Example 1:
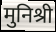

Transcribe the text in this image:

मुनिश्री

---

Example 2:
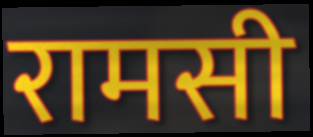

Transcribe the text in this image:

रामसी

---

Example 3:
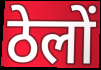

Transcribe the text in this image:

ठेलों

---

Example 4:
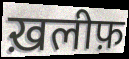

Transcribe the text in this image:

ख़लीफ़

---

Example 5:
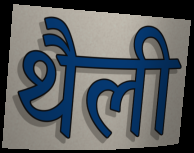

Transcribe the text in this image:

थैली